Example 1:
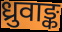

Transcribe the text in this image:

ध्रुवाङ्क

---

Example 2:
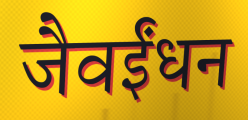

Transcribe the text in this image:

जैवईंधन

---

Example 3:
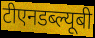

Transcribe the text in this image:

टीएनडब्ल्यूबी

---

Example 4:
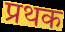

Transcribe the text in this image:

प्रथक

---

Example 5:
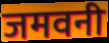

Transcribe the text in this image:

जमवनी